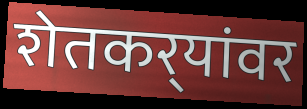
शेतकर्‍यांवर